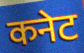
कनेट